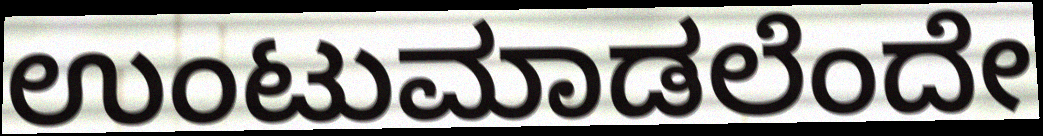
ಉಂಟುಮಾಡಲೆಂದೇ